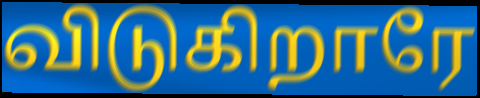
விடுகிறாரே